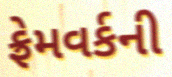
ફ્રેમવર્કની